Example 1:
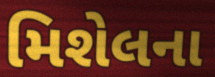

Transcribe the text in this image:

મિશેલના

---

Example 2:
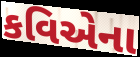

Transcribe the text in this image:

કવિએના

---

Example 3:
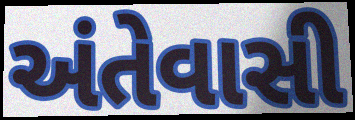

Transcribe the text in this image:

અંતેવાસી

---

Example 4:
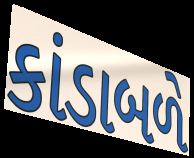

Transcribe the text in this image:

કાંડાબળે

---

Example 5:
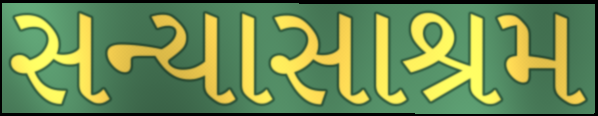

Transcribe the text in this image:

સન્યાસાશ્રમ